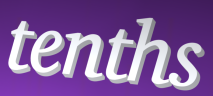
tenths